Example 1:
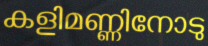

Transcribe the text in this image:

കളിമണ്ണിനോടു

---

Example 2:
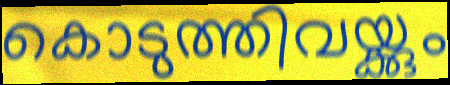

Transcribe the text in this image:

കൊടുത്തിവയ്ക്കും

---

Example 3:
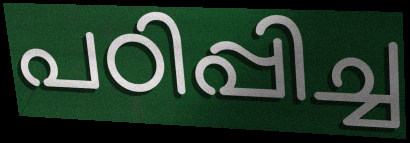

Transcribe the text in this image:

പഠിപ്പിച്ച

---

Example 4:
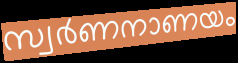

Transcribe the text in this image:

സ്വർണനാണയം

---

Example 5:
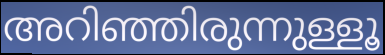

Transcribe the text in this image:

അറിഞ്ഞിരുന്നുള്ളൂ